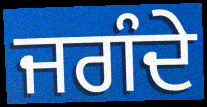
ਜਗੰਦੇ